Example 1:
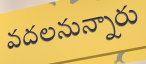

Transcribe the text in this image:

వదలనున్నారు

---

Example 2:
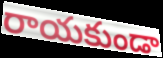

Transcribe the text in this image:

రాయకుండా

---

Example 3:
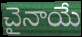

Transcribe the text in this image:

చైనాయే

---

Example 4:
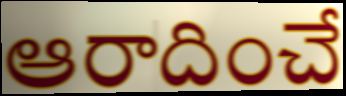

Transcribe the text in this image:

ఆరాదించే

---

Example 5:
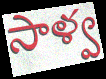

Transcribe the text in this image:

సాళ్వ